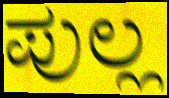
ಪುಲ್ಲ